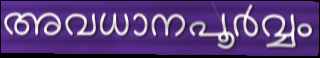
അവധാനപൂർവ്വം